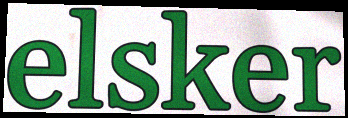
elsker